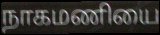
நாகமணியை